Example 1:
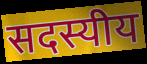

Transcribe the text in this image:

सदस्यीय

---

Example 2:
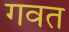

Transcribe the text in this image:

गवत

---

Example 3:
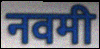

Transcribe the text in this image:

नवमी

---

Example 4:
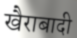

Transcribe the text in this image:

खैराबादी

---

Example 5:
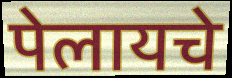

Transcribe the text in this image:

पेलायचे